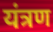
यंत्रण